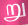
று